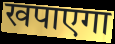
खपाएगा